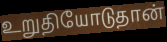
உறுதியோடுதான்